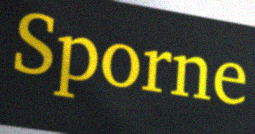
Sporne